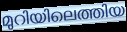
മുറിയിലെത്തിയ